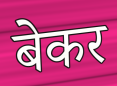
बेकर